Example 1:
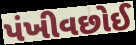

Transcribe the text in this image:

પંખીવછોઈ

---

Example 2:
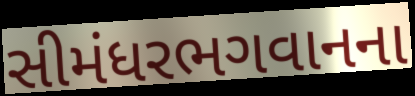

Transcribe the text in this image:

સીમંધરભગવાનના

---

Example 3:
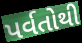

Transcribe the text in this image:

પર્વતોથી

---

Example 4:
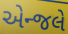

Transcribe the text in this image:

એન્જલે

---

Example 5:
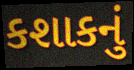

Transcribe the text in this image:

કશાકનું